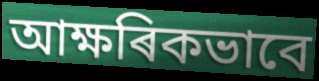
আক্ষৰিকভাবে